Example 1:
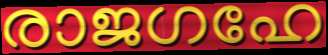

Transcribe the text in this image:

രാജഗഹേ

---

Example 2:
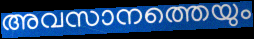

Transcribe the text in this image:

അവസാനത്തെയും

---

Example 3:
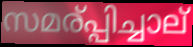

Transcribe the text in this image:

സമര്പ്പിച്ചാല്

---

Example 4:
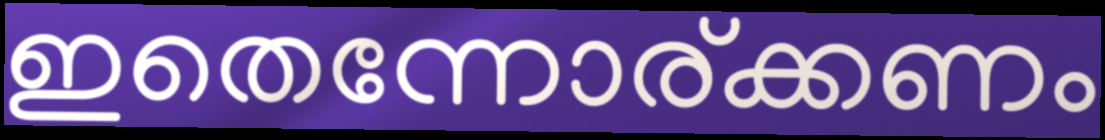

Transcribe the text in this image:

ഇതെന്നോര്ക്കണം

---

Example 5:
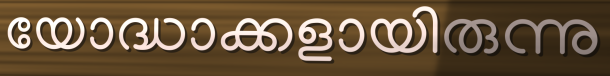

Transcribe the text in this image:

യോദ്ധാക്കളായിരുന്നു